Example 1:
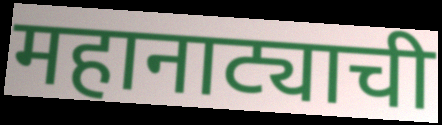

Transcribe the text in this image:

महानाट्याची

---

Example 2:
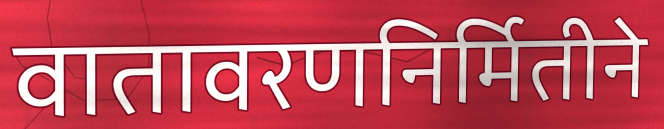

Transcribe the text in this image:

वातावरणनिर्मितीने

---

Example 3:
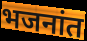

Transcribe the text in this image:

भजनांत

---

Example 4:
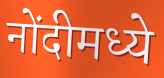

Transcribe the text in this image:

नोंदीमध्ये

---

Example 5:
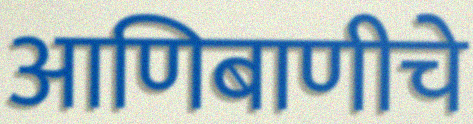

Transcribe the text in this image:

आणिबाणीचे